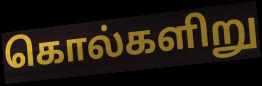
கொல்களிறு